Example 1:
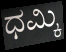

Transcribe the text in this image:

ಧಮ್ಕಿ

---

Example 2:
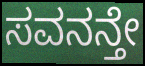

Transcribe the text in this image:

ಸವನನ್ತೇ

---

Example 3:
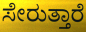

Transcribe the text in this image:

ಸೇರುತ್ತಾರೆ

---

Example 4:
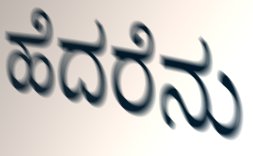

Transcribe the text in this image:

ಹೆದರೆನು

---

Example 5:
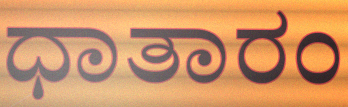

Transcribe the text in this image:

ಧಾತಾರಂ